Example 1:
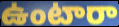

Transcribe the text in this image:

ఉంటారా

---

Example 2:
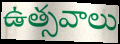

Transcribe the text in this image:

ఉత్సవాలు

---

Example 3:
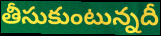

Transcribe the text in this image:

తీసుకుంటున్నదీ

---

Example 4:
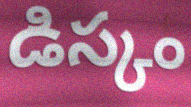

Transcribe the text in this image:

డిస్కం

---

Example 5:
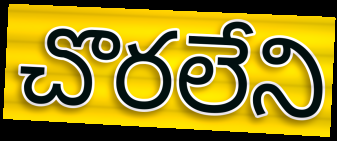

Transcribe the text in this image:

చొరలేని